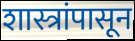
शास्त्रांपासून